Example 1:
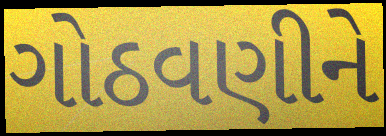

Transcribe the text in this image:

ગોઠવણીને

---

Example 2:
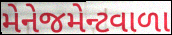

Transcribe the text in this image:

મેનેજમેન્ટવાળા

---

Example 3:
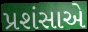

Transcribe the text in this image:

પ્રશંસાએ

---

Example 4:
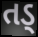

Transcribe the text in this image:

તડ્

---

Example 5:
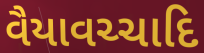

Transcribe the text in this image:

વૈયાવચ્ચાદિ